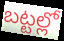
బట్టల్లో